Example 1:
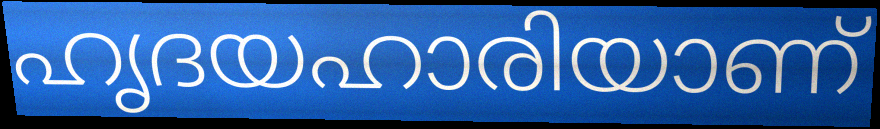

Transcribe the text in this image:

ഹൃദയഹാരിയാണ്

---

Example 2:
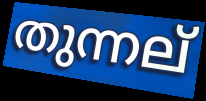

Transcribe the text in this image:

തുന്നല്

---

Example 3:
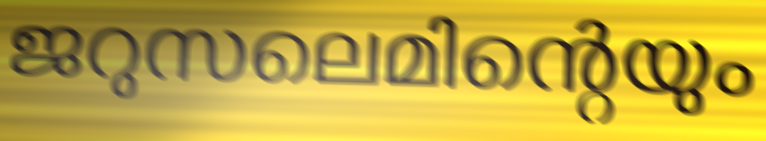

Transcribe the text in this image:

ജറുസലെമിന്റെയും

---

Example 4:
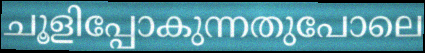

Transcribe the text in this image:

ചൂളിപ്പോകുന്നതുപോലെ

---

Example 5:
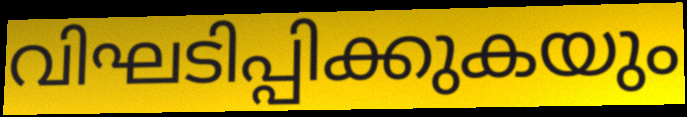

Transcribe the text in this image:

വിഘടിപ്പിക്കുകയും